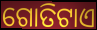
ଗୋତିଟାଏ